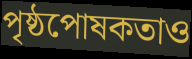
পৃষ্ঠপোষকতাও